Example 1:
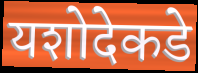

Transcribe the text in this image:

यशोदेकडे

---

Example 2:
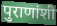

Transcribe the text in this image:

पुराणांशी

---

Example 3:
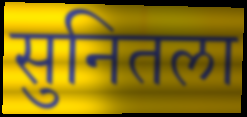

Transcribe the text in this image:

सुनितला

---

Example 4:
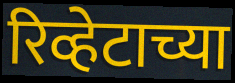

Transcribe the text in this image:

रिव्हेटाच्या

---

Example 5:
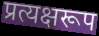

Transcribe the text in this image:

प्रत्यक्षरूप